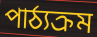
পাঠ্যক্ৰম